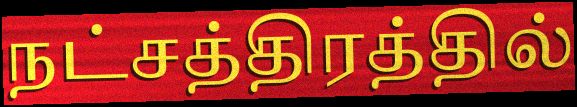
நட்சத்திரத்தில்